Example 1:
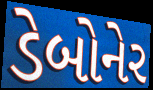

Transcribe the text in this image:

ડેબોનેર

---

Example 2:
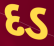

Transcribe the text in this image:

દડ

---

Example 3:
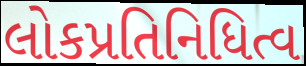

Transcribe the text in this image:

લોકપ્રતિનિધિત્વ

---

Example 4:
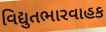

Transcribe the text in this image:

વિદ્યુતભારવાહક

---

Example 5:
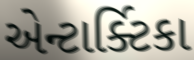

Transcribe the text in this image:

એન્ટાર્ક્ટિકા